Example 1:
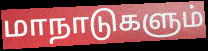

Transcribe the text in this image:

மாநாடுகளும்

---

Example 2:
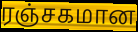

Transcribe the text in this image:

ரஞ்சகமான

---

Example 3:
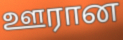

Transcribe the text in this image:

ஊரான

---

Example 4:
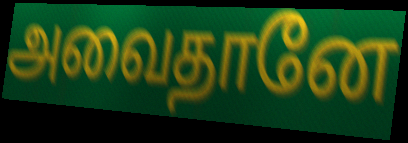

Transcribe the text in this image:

அவைதானே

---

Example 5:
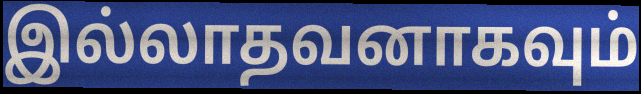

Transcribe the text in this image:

இல்லாதவனாகவும்